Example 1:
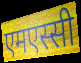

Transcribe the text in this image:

एमएस्सी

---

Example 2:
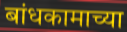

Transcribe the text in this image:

बांधकामाच्या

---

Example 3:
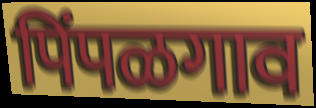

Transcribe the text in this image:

पिंपळगाव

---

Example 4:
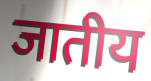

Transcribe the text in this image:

जातीय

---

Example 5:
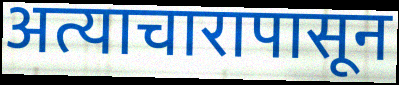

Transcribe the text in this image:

अत्याचारापासून